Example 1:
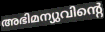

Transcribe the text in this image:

അഭിമന്യുവിന്റെ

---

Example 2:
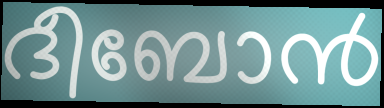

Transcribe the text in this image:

ദീബോൻ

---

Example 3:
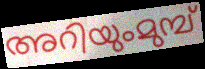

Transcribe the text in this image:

അറിയുംമുമ്പ്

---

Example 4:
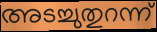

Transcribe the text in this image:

അടച്ചുതുറന്ന്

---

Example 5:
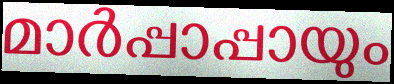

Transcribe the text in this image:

മാർപ്പാപ്പായും